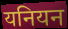
यनियन